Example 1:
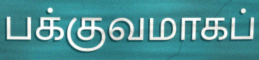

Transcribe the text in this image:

பக்குவமாகப்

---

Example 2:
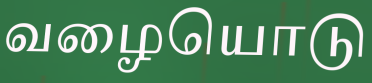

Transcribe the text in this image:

வழையொடு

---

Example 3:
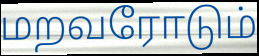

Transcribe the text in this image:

மறவரோடும்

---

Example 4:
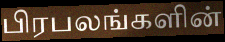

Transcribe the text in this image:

பிரபலங்களின்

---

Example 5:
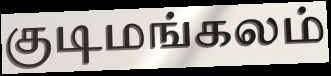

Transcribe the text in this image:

குடிமங்கலம்